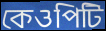
কেওপিটি